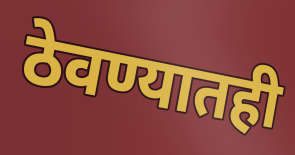
ठेवण्यातही